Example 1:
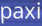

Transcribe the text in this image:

paxi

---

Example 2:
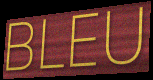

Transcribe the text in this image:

BLEU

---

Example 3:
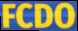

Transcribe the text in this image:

FCDO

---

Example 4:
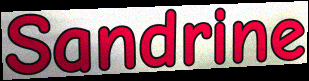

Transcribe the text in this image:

Sandrine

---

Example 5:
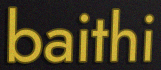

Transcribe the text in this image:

baithi